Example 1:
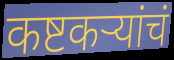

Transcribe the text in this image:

कष्टकऱ्यांचं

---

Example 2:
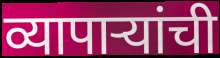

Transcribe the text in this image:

व्यापाऱ्यांची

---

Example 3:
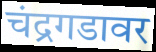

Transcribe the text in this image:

चंद्रगडावर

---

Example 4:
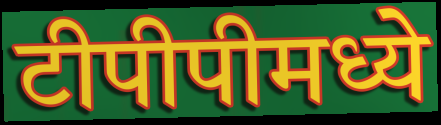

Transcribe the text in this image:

टीपीपीमध्ये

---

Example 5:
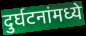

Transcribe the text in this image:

दुर्घटनांमध्ये